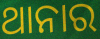
ଥାନାର